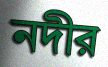
নদীর